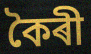
কৈৰী